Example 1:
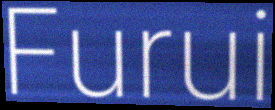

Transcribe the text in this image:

Furui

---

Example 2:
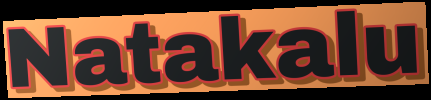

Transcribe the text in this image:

Natakalu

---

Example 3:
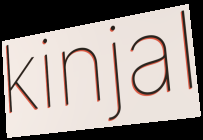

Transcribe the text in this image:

kinjal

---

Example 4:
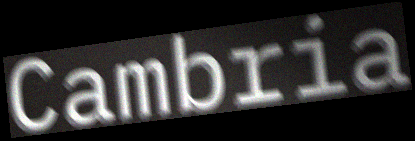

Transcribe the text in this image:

Cambria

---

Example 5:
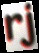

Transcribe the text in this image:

rj